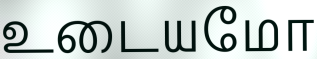
உடையமோ